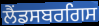
ਲੈਂਡਸਬਰਗਿਸ